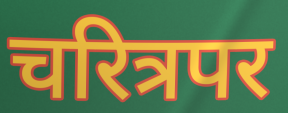
चरित्रपर